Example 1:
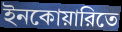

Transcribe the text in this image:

ইনকোয়ারিতে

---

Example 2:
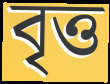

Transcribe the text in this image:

বৃত্ত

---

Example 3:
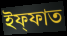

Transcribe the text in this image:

ইফ্ফাত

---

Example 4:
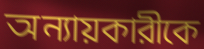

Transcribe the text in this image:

অন্যায়কারীকে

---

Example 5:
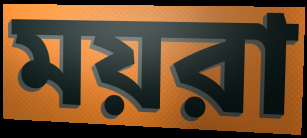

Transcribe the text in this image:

ময়রা